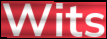
Wits